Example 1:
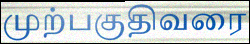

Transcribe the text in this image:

முற்பகுதிவரை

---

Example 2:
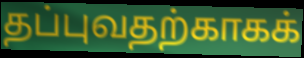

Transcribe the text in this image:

தப்புவதற்காகக்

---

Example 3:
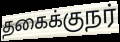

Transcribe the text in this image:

தகைக்குநர்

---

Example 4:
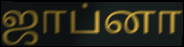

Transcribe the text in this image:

ஜாப்னா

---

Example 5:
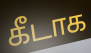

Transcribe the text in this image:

கீடாக